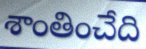
శాంతించేది